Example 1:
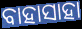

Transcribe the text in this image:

ବାହାସାହା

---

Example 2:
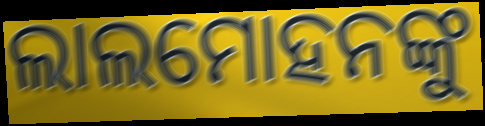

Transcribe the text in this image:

ଲାଲମୋହନଙ୍କୁ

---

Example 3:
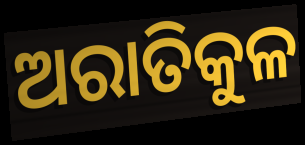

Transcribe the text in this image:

ଅରାତିକୁଳ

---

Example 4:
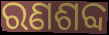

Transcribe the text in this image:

ରଣଶବ୍ଦ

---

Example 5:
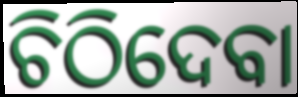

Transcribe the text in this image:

ଚିଠିଦେବା